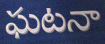
ఘటనా